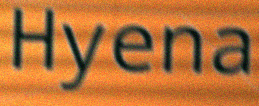
Hyena